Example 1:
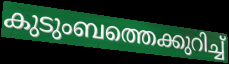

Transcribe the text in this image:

കുടുംബത്തെക്കുറിച്ച്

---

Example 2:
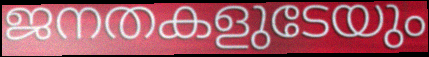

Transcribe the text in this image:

ജനതകളുടേയും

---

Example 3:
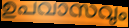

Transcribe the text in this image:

ഉപവാസവും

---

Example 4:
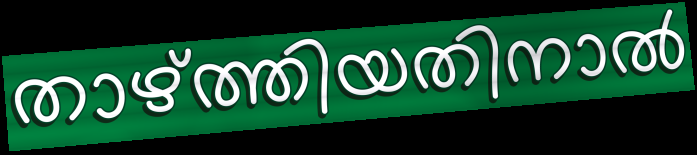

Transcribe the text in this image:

താഴ്ത്തിയതിനാൽ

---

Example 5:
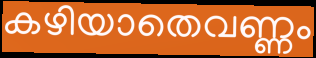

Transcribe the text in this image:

കഴിയാതെവണ്ണം